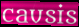
causis